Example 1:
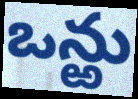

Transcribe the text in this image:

ఒన్ఱు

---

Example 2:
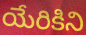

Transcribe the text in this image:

యేరికిని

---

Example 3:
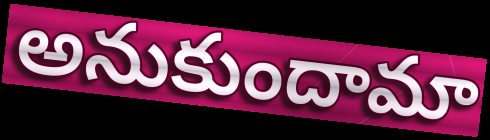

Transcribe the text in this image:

అనుకుందామా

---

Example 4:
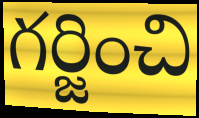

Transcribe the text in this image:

గర్జించి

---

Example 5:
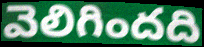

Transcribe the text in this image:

వెలిగిందది